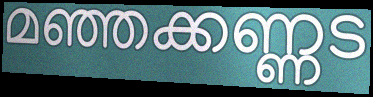
മഞ്ഞക്കണ്ണട